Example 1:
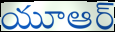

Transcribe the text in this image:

యూఆర్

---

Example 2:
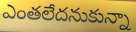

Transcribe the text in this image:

ఎంతలేదనుకున్నా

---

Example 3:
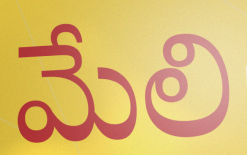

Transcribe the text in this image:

మేలి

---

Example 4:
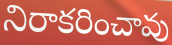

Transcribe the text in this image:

నిరాకరించావు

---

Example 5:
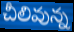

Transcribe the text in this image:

చీలివున్న